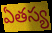
ఏతస్య